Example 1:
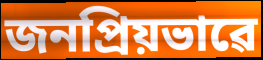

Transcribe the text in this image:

জনপ্ৰিয়ভাৱে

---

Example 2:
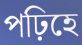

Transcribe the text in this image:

পঢ়িহে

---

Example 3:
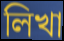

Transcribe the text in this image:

লিখা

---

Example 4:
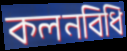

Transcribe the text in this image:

কলনবিধি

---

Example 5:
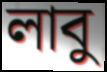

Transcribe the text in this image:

লাবু